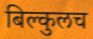
बिल्कुलच